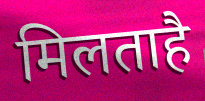
मिलताहै